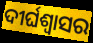
ଦୀର୍ଘଶ୍ବାସର